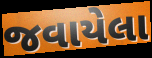
જવાયેલા